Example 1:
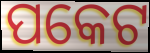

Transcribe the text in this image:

ପକେଟ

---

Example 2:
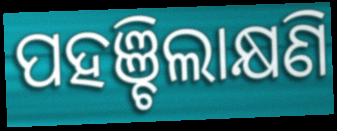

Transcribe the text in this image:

ପହଞ୍ଚିଲାକ୍ଷଣି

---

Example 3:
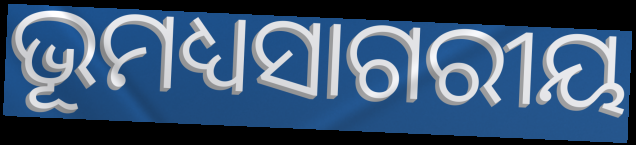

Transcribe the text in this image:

ଭୂମଧ୍ୟସାଗରୀୟ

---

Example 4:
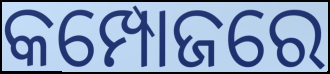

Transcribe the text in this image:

କମ୍ପୋଜରେ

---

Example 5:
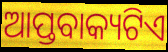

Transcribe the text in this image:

ଆପ୍ତବାକ୍ୟଟିଏ